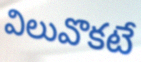
విలువొకటే